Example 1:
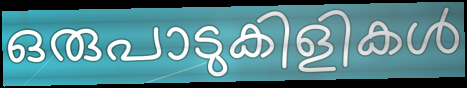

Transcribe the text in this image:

ഒരുപാടുകിളികൾ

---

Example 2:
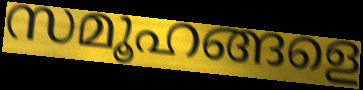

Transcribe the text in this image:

സമൂഹങ്ങളെ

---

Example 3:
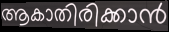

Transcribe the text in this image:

ആകാതിരിക്കാൻ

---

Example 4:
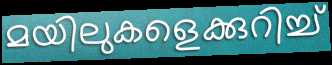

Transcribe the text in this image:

മയിലുകളെക്കുറിച്ച്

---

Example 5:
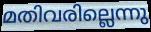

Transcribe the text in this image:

മതിവരില്ലെന്നു